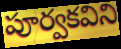
పూర్వకవిని